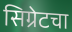
सिग्रेटचा